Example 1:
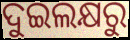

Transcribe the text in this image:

ଦୁଇଲକ୍ଷରୁ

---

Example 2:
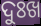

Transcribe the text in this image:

ଦୁଃଖ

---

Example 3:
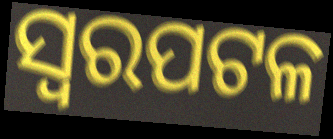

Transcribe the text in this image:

ସ୍ୱରପଟଳ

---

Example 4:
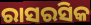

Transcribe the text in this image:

ରାସରସିକ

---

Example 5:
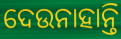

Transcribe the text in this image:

ଦେଉନାହାନ୍ତି